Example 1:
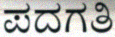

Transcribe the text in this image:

ಪದಗತಿ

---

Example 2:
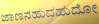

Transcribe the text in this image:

ಜಾಣನಹುದಹುದೋ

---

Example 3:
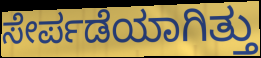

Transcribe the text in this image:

ಸೇರ್ಪಡೆಯಾಗಿತ್ತು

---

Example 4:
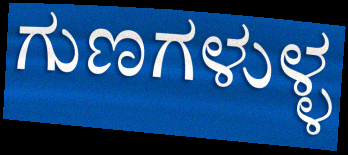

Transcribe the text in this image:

ಗುಣಗಳುಳ್ಳ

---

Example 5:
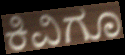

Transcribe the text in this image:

ಕಿವಿಗೂ